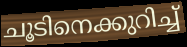
ചൂടിനെക്കുറിച്ച്